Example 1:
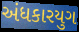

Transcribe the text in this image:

અંધકારયુગ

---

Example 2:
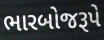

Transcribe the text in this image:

ભારબોજરૂપે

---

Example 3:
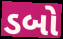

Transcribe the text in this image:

ડબો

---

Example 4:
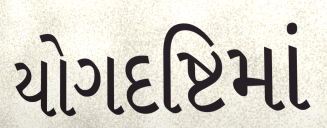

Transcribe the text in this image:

યોગદષ્ટિમાં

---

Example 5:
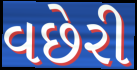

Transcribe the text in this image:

વછેરી